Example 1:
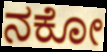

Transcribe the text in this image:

ನಕೋ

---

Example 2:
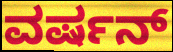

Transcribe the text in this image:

ವರ್ಷನ್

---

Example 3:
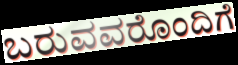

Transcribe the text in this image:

ಬರುವವರೊಂದಿಗೆ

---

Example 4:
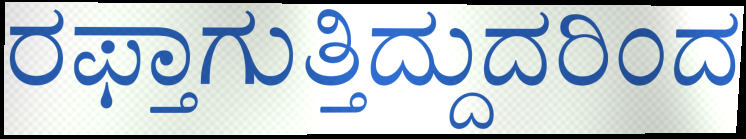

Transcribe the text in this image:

ರಫ್ತಾಗುತ್ತಿದ್ದುದರಿಂದ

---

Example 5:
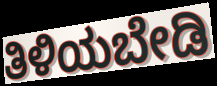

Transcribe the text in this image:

ತಿಳಿಯಬೇಡಿ